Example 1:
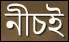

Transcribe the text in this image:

নীচই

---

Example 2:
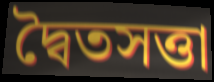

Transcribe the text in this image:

দ্বৈতসত্তা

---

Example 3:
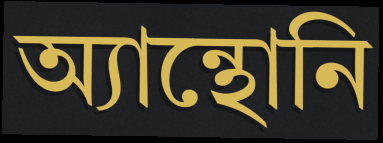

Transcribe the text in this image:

অ্যান্থোনি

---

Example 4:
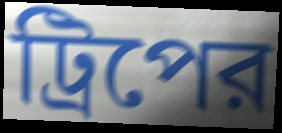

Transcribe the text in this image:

ট্রিপের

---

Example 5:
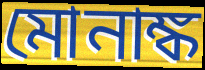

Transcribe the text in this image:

মোনাঙ্ক